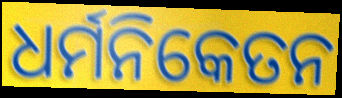
ଧର୍ମନିକେତନ